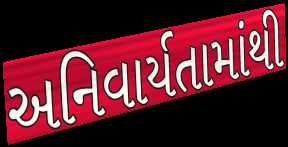
અનિવાર્યતામાંથી